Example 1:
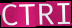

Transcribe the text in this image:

CTRI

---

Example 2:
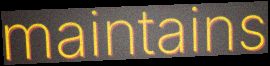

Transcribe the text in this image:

maintains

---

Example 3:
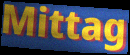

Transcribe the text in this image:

Mittag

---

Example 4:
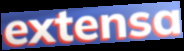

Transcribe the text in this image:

extensa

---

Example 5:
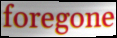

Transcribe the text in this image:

foregone